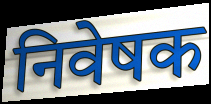
निवेषक